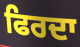
ਫਿਰਦਾ